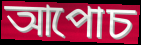
আপোচ